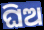
ଘିଅ